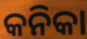
କନିକା